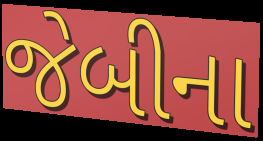
જેબીના